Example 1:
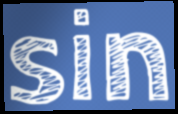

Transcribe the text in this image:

sin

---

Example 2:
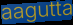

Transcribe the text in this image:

aagutta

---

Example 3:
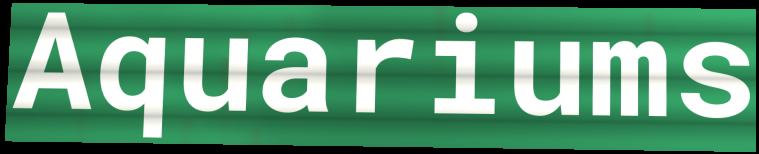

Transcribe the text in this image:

Aquariums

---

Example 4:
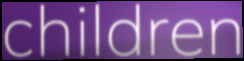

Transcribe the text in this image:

children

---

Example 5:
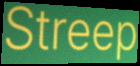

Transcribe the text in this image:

Streep